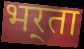
भर्ता